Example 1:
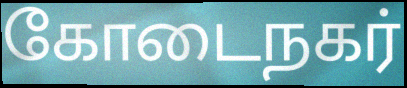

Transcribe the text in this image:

கோடைநகர்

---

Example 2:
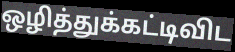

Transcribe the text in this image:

ஒழித்துக்கட்டிவிட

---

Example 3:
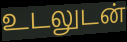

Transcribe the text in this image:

உடலுடன்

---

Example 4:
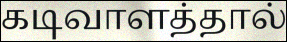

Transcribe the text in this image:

கடிவாளத்தால்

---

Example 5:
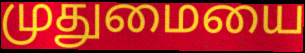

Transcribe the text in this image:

முதுமையை